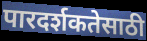
पारदर्शकतेसाठी